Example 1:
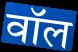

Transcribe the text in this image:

वॉल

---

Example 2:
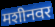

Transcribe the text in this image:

मशीनवर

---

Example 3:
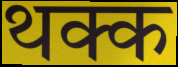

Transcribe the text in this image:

थक्क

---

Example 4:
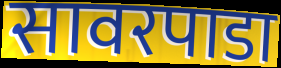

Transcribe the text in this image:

सावरपाडा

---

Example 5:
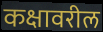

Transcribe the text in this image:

कक्षावरील